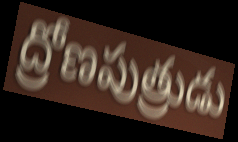
ద్రోణపుత్రుడు